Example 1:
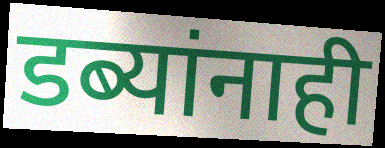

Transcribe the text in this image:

डब्यांनाही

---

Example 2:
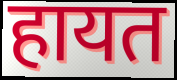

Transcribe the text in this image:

हायत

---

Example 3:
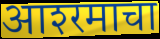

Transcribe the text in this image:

आश्रमाचा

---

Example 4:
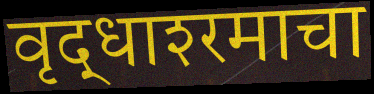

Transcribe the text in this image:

वृद्धाश्रमाचा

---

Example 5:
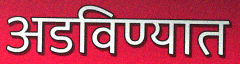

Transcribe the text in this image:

अडविण्यात